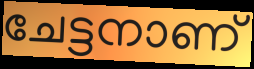
ചേട്ടനാണ്